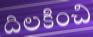
దిలకించి